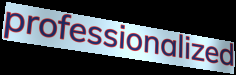
professionalized